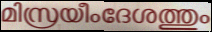
മിസ്രയീംദേശത്തും